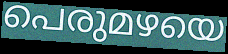
പെരുമഴയെ